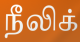
நீலிக்